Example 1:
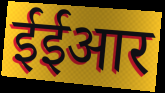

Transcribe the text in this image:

ईईआर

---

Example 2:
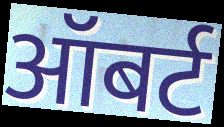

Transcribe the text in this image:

ऑबर्ट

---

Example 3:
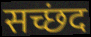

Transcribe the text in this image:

सच्छंद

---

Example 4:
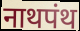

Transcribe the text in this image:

नाथपंथ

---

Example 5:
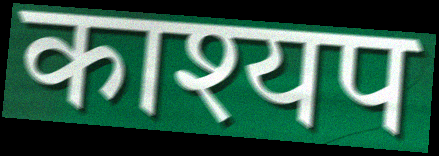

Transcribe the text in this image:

काश्यप